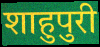
शाहुपुरी